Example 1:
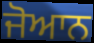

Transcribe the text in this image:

ਜੋਆਨ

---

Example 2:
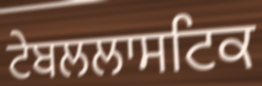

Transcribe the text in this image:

ਟੇਬਲਲਾਸਟਿਕ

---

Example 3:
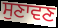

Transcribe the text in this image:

ਸੁਣਾਵਣ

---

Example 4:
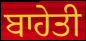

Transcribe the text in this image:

ਬਾਹੇਤੀ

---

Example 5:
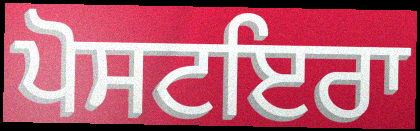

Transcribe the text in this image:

ਪੋਸਟਇਰਾ